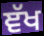
ਞੱਖ